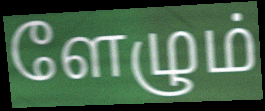
ளேழும்